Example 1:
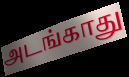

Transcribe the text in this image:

அடங்காது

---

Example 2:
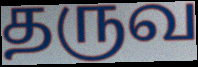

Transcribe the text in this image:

தருவ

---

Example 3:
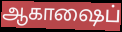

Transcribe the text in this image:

ஆகாஷைப்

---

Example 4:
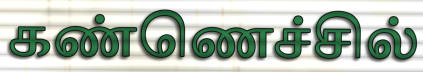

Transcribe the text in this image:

கண்ணெச்சில்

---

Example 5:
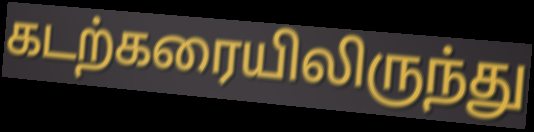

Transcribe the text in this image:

கடற்கரையிலிருந்து